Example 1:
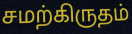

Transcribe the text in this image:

சமற்கிருதம்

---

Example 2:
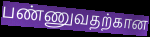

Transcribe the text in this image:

பண்ணுவதற்கான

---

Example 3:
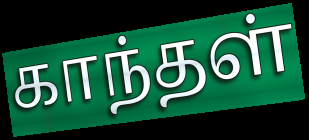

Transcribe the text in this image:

காந்தள்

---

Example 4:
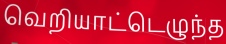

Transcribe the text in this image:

வெறியாட்டெழுந்த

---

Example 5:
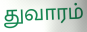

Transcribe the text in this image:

துவாரம்